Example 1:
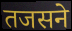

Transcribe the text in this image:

तजसने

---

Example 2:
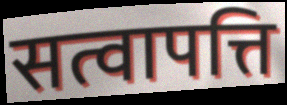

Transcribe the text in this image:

सत्वापत्ति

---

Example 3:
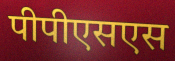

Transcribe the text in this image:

पीपीएसएस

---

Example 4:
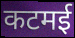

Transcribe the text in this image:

कटमई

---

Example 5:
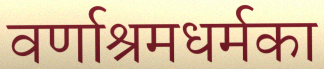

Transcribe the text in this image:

वर्णाश्रमधर्मका